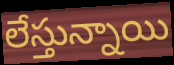
లేస్తున్నాయి